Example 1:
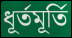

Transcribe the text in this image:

ধূর্তমূর্তি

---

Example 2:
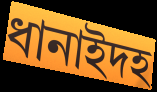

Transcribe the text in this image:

ধানাইদহ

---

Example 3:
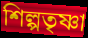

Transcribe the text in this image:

শিল্পতৃষ্ণা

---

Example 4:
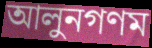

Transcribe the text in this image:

আলুনগণম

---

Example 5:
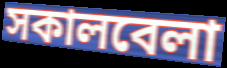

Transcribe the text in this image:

সকালবেলা